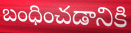
బంధించడానికి